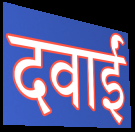
दवाईं